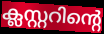
ക്ലസ്റ്ററിന്റെ